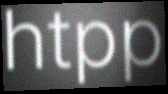
htpp